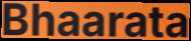
Bhaarata